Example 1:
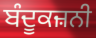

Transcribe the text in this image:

ਬੰਦੂਕਜ਼ਨੀ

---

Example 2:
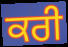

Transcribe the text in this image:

ਕਰੀ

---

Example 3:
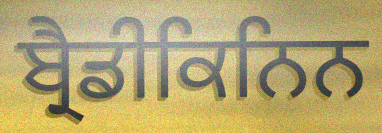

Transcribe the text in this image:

ਬ੍ਰੈਡੀਕਿਨਿਨ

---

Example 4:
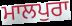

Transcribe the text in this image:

ਮਾਲਪੁਰਾ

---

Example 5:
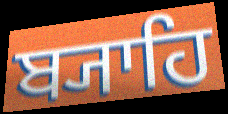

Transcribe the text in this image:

ਬ੍ਯਾਹਿ